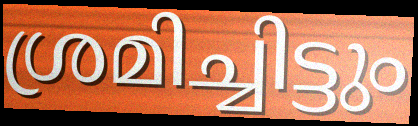
ശ്രമിച്ചിട്ടും